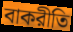
বাকরীতি